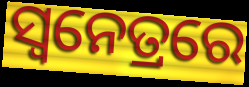
ସ୍ୱନେତ୍ରରେ